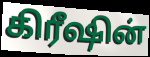
கிரீஷின்